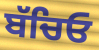
ਬੱਚਿਓ